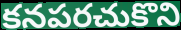
కనపరచుకొని